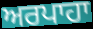
ਅਰਪਾਹਾ